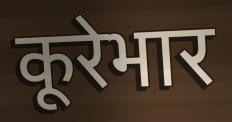
कूरेभार